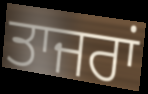
ਤਾਜਰਾਂ